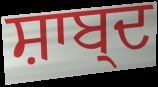
ਸ਼ਾਬ੍ਦ